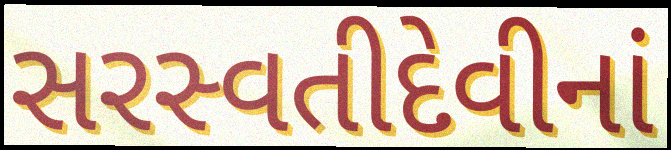
સરસ્વતીદેવીનાં